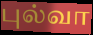
புல்வா